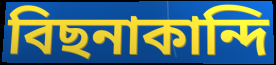
বিছনাকান্দি